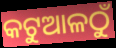
କଟୁଆଳଠୁଁ